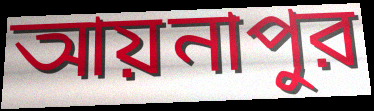
আয়নাপুর